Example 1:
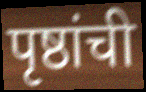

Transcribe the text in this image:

पृष्ठांची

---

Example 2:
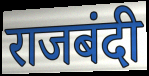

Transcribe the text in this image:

राजबंदी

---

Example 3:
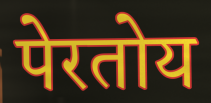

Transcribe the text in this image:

पेरतोय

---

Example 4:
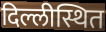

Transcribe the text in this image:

दिल्लीस्थित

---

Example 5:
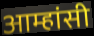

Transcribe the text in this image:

आम्हांसी